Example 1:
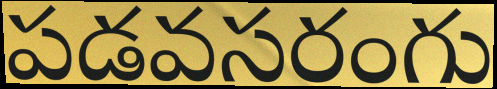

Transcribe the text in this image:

పడవసరంగు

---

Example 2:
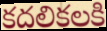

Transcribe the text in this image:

కదలికలకి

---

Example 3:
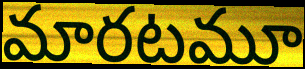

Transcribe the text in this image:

మారటమూ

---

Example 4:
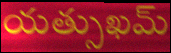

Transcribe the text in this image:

యత్సుఖమ్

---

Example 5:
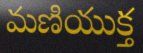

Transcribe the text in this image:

మణియుక్త